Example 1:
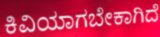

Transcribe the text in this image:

ಕಿವಿಯಾಗಬೇಕಾಗಿದೆ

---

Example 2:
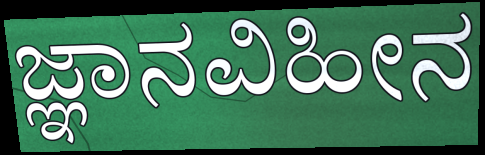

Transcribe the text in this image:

ಜ್ಞಾನವಿಹೀನ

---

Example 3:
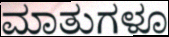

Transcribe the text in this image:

ಮಾತುಗಳೂ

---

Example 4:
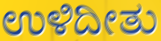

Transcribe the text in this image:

ಉಳಿದೀತು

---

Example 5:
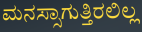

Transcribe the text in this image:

ಮನಸ್ಸಾಗುತ್ತಿರಲಿಲ್ಲ